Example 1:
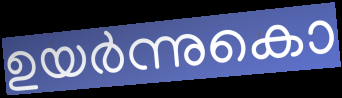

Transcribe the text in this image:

ഉയർന്നുകൊ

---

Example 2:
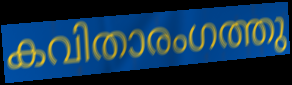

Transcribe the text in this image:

കവിതാരംഗത്തു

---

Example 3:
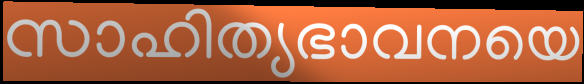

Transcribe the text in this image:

സാഹിത്യഭാവനയെ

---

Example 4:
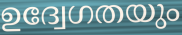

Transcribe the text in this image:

ഉദ്വേഗതയും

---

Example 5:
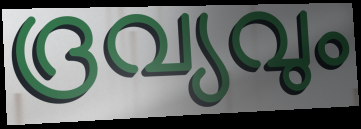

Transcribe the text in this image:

ദ്രവ്യവും